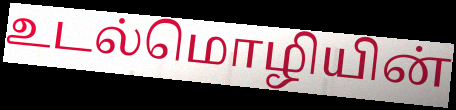
உடல்மொழியின்